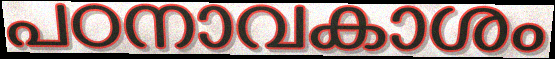
പഠനാവകാശം